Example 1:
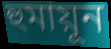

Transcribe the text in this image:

হুমায়ূন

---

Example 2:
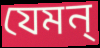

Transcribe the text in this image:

যেমন্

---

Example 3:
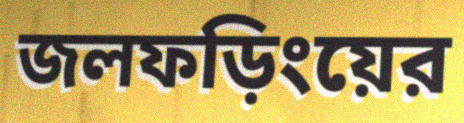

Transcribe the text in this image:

জলফড়িংয়ের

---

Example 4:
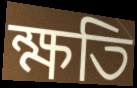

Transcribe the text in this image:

ক্ষতি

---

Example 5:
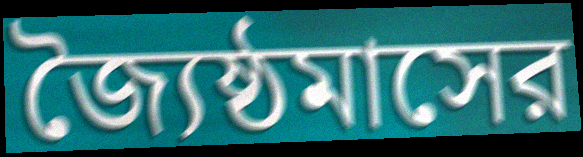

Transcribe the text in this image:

জ্যৈষ্ঠমাসের